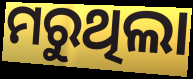
ମରୁଥିଲା